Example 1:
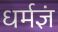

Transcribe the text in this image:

धर्मज्ञं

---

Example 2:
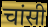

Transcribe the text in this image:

चांसी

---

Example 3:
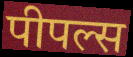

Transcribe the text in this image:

पीपल्स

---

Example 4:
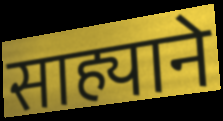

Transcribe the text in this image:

साह्याने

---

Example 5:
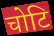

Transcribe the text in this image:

चोटि